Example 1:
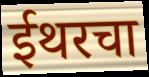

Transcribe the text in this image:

ईथरचा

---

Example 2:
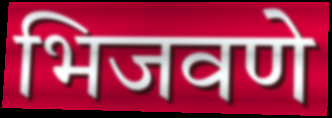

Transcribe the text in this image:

भिजवणे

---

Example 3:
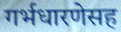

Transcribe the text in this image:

गर्भधारणेसह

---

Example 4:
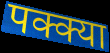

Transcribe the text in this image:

पक्क्या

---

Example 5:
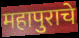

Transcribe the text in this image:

महापुराचे